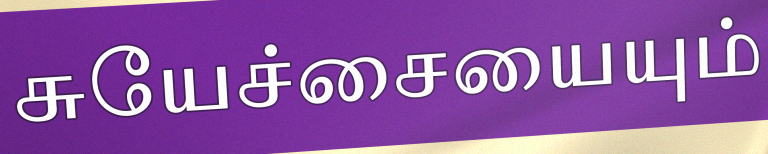
சுயேச்சையையும்